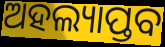
ଅହଲ୍ୟାପ୍ତବ